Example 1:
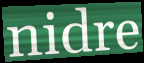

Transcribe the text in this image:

nidre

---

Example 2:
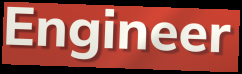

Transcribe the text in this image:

Engineer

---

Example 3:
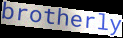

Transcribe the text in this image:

brotherly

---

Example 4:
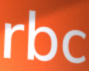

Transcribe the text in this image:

rbc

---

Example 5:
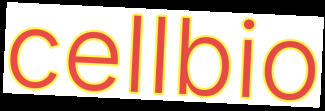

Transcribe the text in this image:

cellbio